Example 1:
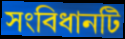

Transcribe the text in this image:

সংবিধানটি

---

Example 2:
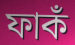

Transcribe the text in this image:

ফাকঁ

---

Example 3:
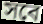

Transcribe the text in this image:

সবে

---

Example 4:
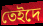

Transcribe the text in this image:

তেইদে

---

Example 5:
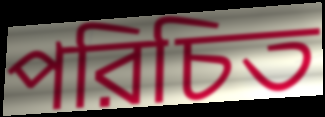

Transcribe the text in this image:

পরিচিত